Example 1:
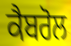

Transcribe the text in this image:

ਕੈਬਰੋਲ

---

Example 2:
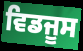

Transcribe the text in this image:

ਵਿਡਜੂਸ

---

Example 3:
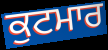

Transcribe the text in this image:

ਕੁਟਮਾਰ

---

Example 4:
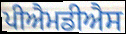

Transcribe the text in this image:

ਪੀਐਮਡੀਐਸ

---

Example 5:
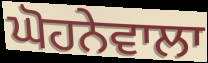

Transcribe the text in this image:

ਘੋਹਨੇਵਾਲਾ